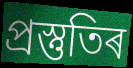
প্ৰস্তুতিৰ